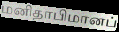
மனிதாபிமானப்